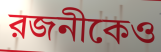
রজনীকেও